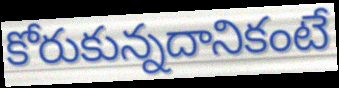
కోరుకున్నదానికంటే